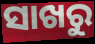
ସାଖରୁ